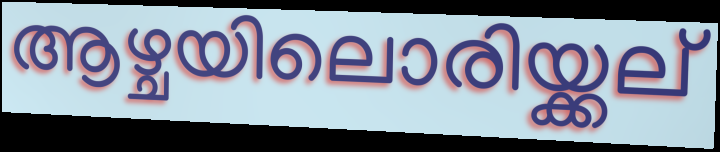
ആഴ്ചയിലൊരിയ്ക്കല്